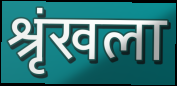
श्रृंखला